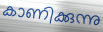
കാണിക്കുന്നു